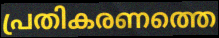
പ്രതികരണത്തെ